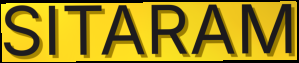
SITARAM